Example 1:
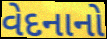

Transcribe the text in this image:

વેદનાનો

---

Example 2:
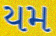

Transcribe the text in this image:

યમ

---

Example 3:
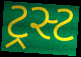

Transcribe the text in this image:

ટ્રસ્ટ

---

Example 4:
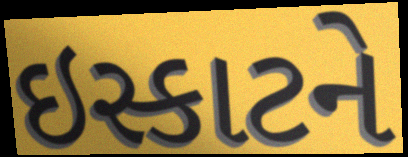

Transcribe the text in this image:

ઇસ્કાટને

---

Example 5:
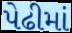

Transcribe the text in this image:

પેઢીમાં